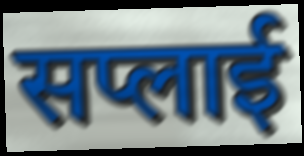
सप्लाई